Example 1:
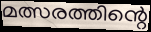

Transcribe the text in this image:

മത്സരത്തിന്റെ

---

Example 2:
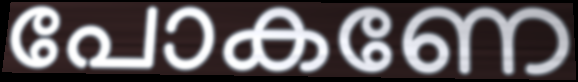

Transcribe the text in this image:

പോകണേ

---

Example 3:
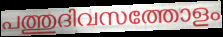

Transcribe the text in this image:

പത്തുദിവസത്തോളം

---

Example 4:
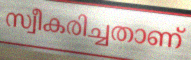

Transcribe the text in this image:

സ്വീകരിച്ചതാണ്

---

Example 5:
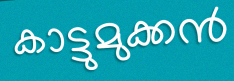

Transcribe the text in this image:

കാട്ടുമുക്കൻ